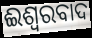
ଈଶ୍ୱରବାଦ